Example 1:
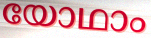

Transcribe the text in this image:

യോഥാം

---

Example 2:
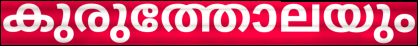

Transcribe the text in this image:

കുരുത്തോലയും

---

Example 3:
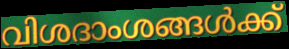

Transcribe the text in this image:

വിശദാംശങ്ങൾക്ക്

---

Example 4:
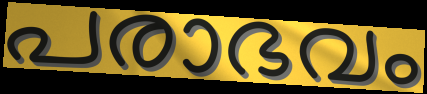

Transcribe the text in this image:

പരാഭവം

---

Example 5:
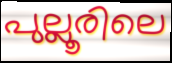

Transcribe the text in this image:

പുല്ലൂരിലെ